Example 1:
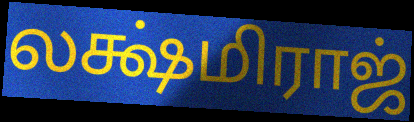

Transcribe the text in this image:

லக்ஷ்மிராஜ்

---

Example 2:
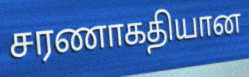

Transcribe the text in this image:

சரணாகதியான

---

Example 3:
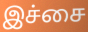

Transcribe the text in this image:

இச்சை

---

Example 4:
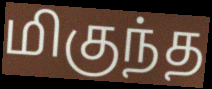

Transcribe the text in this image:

மிகுந்த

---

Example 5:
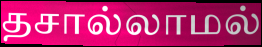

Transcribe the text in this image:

தசால்லாமல்